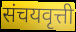
संचयवृत्ती